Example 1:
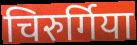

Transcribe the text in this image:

चिरुर्गिया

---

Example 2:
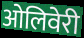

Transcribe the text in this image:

ओलिवेरी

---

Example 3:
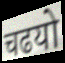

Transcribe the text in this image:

चढयो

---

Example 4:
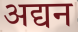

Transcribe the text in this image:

अद्यन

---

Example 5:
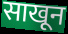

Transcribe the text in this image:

साखून